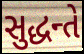
સુદ્ધન્તે